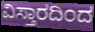
ವಿಸ್ತಾರದಿಂದ